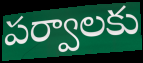
పర్వాలకు